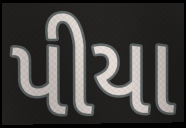
પીયા